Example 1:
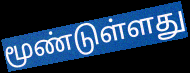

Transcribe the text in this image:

மூண்டுள்ளது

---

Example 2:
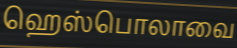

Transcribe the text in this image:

ஹெஸ்பொலாவை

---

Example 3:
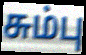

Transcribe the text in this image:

சும்பு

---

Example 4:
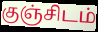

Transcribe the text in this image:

குஞ்சிடம்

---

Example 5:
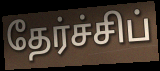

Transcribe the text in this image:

தேர்ச்சிப்